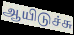
ஆயிடுச்சு